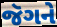
જૅગને